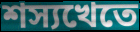
শস্যখেতে